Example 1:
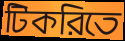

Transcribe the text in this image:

টিকরিতে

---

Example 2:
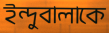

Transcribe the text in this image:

ইন্দুবালাকে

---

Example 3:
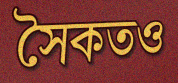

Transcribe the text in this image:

সৈকতও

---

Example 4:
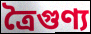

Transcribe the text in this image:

ত্রৈগুণ্য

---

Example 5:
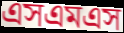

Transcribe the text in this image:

এসএমএস